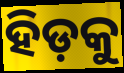
ହିଡ଼କୁ